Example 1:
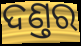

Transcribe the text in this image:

ଦଣ୍ତର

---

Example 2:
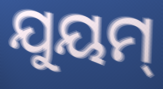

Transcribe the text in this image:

ଯୁୟମ୍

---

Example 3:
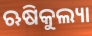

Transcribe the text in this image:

ଋଷିକୁଲ୍ୟା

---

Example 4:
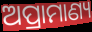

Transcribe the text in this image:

ଅପ୍ରାମାଣ୍ୟ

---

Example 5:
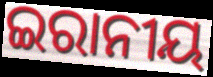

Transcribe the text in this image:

ଇରାନୀୟ